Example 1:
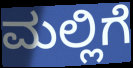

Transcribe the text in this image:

ಮಲ್ಲಿಗೆ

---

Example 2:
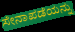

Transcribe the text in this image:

ಸೇನಾಪಡೆಯನ್ನು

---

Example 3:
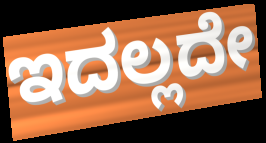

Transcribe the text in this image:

ಇದಲ್ಲದೇ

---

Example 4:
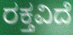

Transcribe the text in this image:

ರಕ್ತವಿದೆ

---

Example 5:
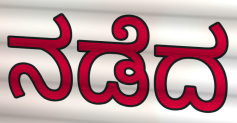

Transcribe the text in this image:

ನಡೆದ